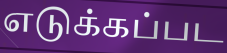
எடுக்கப்பட